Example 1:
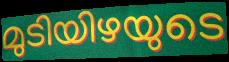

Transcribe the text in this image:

മുടിയിഴയുടെ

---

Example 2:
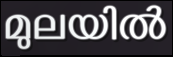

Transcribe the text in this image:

മുലയിൽ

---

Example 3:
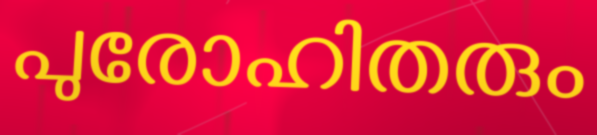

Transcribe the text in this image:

പുരോഹിതരും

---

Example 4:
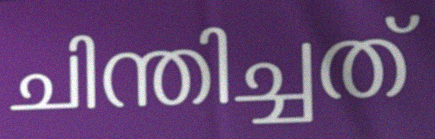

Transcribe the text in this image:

ചിന്തിച്ചത്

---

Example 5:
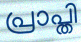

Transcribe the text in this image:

പ്രാപ്തി